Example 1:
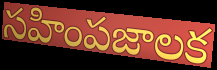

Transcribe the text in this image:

సహింపజాలక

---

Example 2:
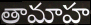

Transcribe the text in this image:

తామాహ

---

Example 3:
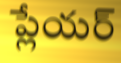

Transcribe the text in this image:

ప్లేయర్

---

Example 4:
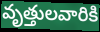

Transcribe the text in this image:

వృత్తులవారికి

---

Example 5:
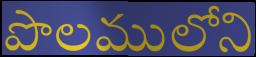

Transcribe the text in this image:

పొలములోని